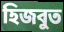
হিজবুত